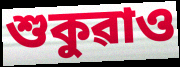
শুকুৱাও